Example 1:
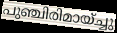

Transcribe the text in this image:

പുഞ്ചിരിമായ്ച്ചു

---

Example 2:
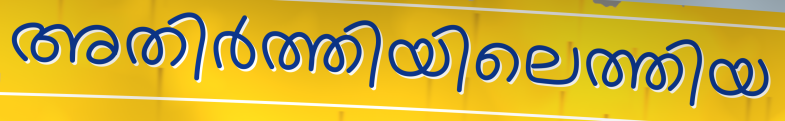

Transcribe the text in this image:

അതിർത്തിയിലെത്തിയ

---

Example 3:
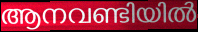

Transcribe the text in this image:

ആനവണ്ടിയിൽ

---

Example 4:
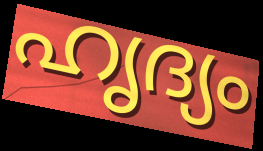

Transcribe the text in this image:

ഹൃദ്യം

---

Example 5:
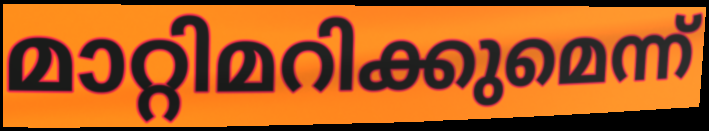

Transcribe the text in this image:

മാറ്റിമറിക്കുമെന്ന്